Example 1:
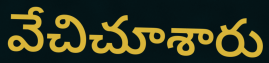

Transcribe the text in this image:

వేచిచూశారు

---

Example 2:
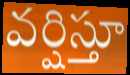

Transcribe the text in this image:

వర్షిస్తూ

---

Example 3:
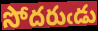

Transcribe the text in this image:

సోదరుఁడు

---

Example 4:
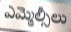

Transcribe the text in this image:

ఎమ్మెల్సీలు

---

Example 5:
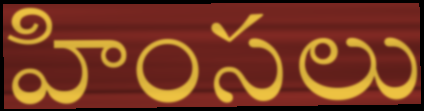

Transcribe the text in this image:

హింసలు